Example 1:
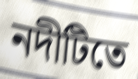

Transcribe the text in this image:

নদীটিতে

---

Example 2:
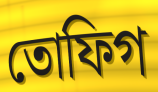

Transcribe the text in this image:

তোফিগ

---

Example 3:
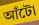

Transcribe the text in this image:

আঁটো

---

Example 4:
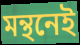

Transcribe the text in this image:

মন্থনেই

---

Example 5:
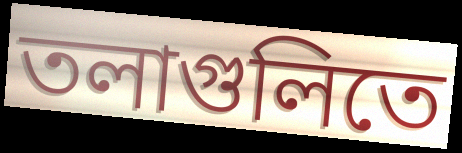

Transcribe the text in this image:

তলাগুলিতে